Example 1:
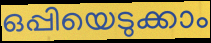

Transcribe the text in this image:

ഒപ്പിയെടുക്കാം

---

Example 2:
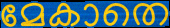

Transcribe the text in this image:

മേകാതെ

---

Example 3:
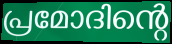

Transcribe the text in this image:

പ്രമോദിന്റെ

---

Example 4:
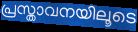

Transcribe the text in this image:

പ്രസ്താവനയിലൂടെ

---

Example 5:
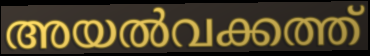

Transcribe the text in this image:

അയൽവക്കത്ത്